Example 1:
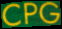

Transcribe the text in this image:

CPG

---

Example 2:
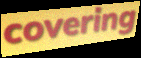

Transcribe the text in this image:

covering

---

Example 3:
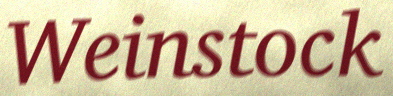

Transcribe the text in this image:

Weinstock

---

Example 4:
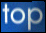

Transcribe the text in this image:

top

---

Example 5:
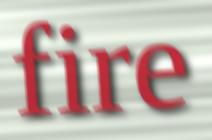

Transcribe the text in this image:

fire